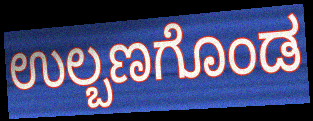
ಉಲ್ಬಣಗೊಂಡ